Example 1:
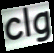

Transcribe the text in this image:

clg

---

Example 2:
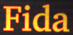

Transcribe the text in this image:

Fida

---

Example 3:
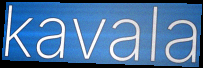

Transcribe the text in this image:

kavala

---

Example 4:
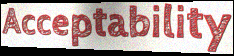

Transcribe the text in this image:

Acceptability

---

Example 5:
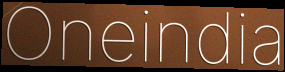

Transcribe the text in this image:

Oneindia